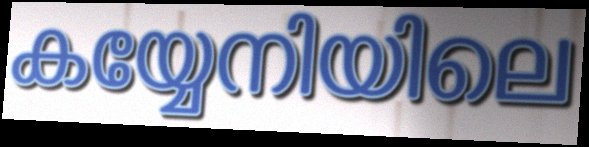
കയ്യേനിയിലെ